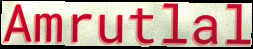
Amrutlal